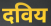
दविय